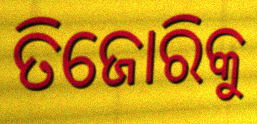
ତିଜୋରିକୁ